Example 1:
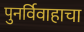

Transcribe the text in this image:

पुनर्विवाहाचा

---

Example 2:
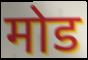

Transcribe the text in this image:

मोड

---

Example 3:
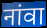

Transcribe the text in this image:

नांवा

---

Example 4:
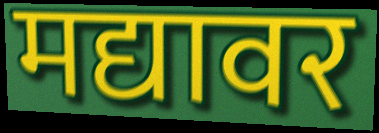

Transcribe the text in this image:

मद्यावर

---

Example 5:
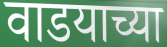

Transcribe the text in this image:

वाडयाच्या